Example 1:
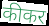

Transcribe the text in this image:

कीकर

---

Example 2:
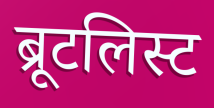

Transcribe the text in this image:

ब्रूटलिस्ट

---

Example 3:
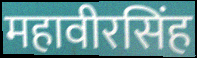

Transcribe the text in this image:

महावीरसिंह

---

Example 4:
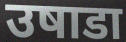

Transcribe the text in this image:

उषाडा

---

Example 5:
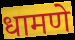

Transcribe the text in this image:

धामणे